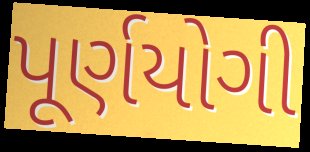
પૂર્ણયોગી